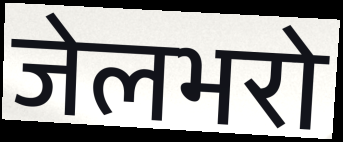
जेलभरो